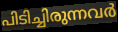
പിടിച്ചിരുന്നവർ